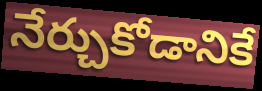
నేర్చుకోడానికే